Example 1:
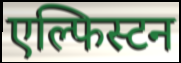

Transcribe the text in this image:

एल्फिस्टन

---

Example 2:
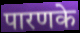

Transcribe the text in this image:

पारणके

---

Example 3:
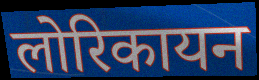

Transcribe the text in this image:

लोरिकायन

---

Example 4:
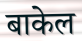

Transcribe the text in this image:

बाकेल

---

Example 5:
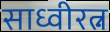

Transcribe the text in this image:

साध्वीरत्न